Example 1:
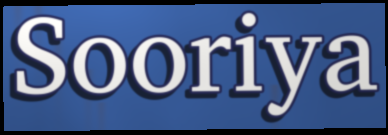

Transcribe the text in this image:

Sooriya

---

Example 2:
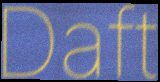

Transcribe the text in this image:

Daft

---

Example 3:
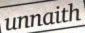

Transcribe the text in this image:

unnaith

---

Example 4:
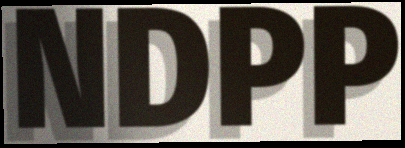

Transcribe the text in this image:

NDPP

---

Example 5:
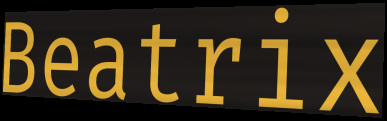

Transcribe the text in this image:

Beatrix